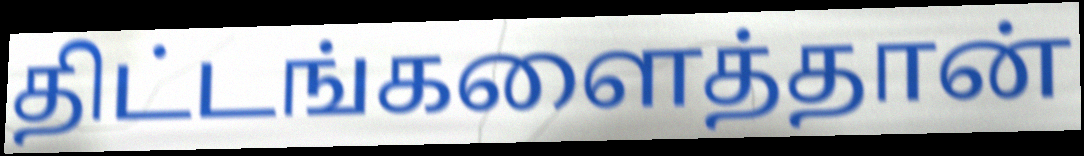
திட்டங்களைத்தான்